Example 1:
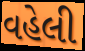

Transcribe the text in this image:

વહેલી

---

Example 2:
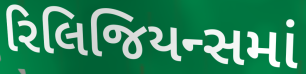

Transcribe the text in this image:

રિલિજિયન્સમાં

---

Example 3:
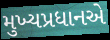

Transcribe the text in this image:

મુખ્યપ્રધાનએ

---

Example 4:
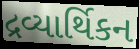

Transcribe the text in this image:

દ્રવ્યાર્થિકન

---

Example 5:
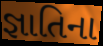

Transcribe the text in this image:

જ્ઞાતિના